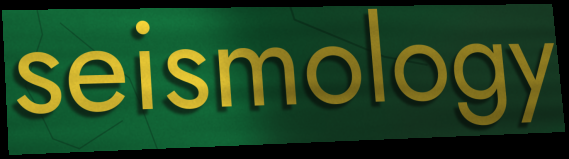
seismology